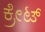
ಕ್ರೇಟ್